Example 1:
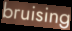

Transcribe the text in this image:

bruising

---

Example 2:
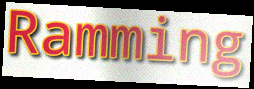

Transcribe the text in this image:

Ramming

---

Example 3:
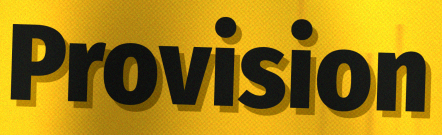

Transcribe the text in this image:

Provision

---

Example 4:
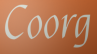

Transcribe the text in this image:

Coorg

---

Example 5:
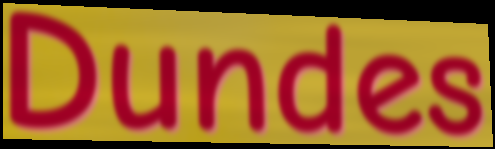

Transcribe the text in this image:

Dundes